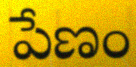
పేణం